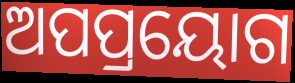
ଅପପ୍ରୟୋଗ